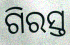
ଗିରସ୍ତ